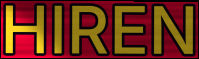
HIREN